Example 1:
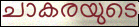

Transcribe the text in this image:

ചാകരയുടെ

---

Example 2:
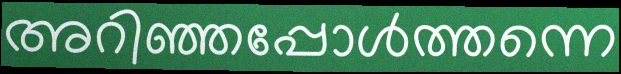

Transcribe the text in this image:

അറിഞ്ഞപ്പോൾത്തന്നെ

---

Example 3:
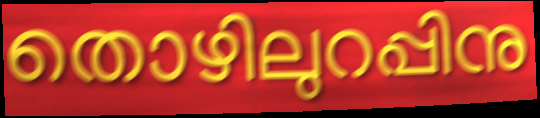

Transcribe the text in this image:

തൊഴിലുറപ്പിനു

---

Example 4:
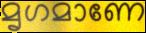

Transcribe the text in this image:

മൃഗമാണേ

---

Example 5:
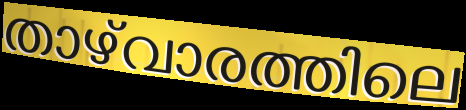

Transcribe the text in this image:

താഴ്‌വാരത്തിലെ